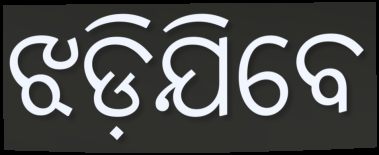
ଝଡ଼ିଯିବେ